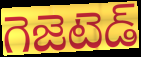
గెజెటెడ్